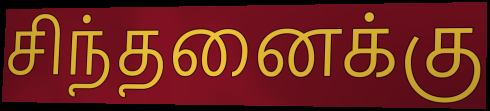
சிந்தனைக்கு